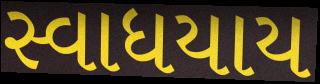
સ્વાધયાય